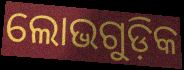
ଲୋଭଗୁଡ଼ିକ